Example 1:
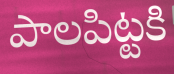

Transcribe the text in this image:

పాలపిట్టకి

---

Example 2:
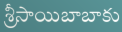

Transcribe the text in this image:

శ్రీసాయిబాబాకు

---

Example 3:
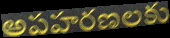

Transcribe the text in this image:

అపహరణలకు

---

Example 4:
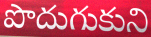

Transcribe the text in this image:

పొదుగుకుని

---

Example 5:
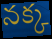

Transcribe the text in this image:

నక్క